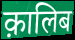
क़ालिब